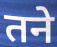
तने